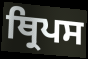
ਥ੍ਰਿਪਸ